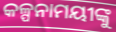
କଳ୍ପନାମୟୀଙ୍କୁ